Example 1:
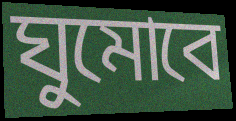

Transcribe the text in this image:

ঘুমোবে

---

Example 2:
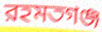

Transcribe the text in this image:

রহমতগঞ্জ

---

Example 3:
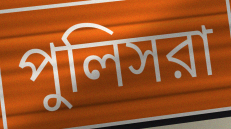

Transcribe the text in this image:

পুলিসরা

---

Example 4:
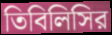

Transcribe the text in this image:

তিবিলিসির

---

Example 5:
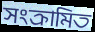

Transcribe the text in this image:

সংক্রামিত